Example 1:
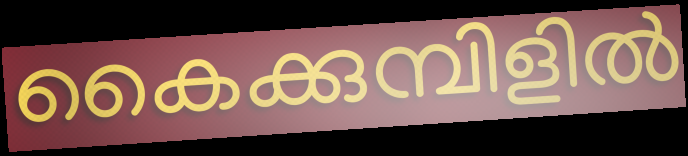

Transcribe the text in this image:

കൈക്കുമ്പിളിൽ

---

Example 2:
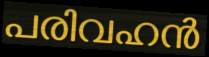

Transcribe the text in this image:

പരിവഹൻ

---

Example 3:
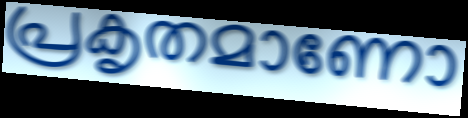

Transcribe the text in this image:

പ്രകൃതമാണോ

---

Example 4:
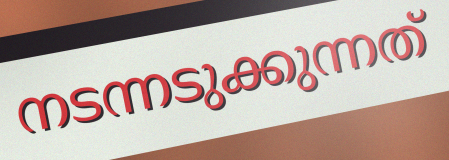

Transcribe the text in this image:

നടന്നടുക്കുന്നത്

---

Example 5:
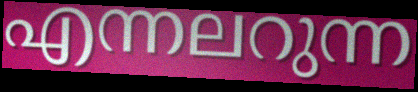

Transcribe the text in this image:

എന്നലറുന്ന